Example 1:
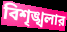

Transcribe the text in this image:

বিশৃঙ্খলার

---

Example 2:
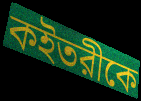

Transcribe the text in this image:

কইতরীকে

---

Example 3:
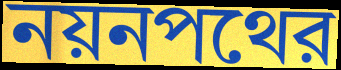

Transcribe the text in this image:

নয়নপথের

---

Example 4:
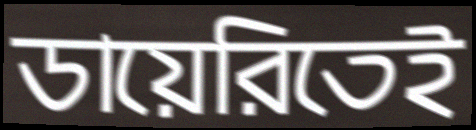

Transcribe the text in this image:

ডায়েরিতেই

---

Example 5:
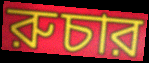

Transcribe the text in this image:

রুচার